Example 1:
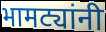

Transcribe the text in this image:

भामट्यांनी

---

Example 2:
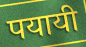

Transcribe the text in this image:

पयायी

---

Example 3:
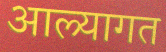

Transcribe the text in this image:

आल्यागत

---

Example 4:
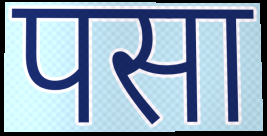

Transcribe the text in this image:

पसा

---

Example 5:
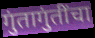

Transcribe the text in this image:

गुंतागुंतींचा